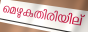
മെഴുകുതിരിയില്